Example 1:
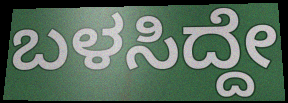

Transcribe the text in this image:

ಬಳಸಿದ್ದೇ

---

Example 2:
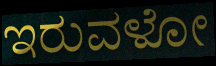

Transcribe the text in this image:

ಇರುವಳೋ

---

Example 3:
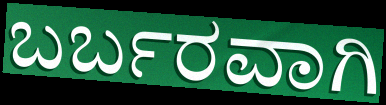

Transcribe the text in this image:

ಬರ್ಬರವಾಗಿ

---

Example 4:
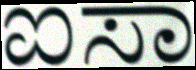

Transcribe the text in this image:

ಐಸಾ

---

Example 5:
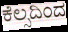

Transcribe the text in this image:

ಕೆಲ್ಸದಿಂದ